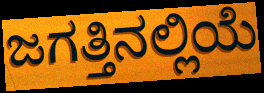
ಜಗತ್ತಿನಲ್ಲಿಯೆ